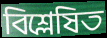
বিশ্লেষিত